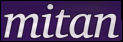
mitan